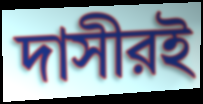
দাসীরই